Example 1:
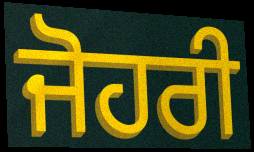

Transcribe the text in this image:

ਜੋਹਰੀ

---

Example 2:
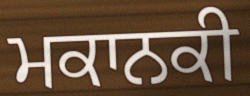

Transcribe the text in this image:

ਮਕਾਨਕੀ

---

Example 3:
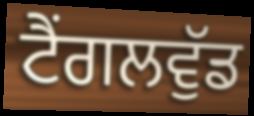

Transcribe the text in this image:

ਟੈਂਗਲਵੁੱਡ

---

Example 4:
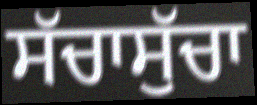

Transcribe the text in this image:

ਸੱਚਾਸੁੱਚਾ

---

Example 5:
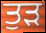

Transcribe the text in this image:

ਤੁੜ